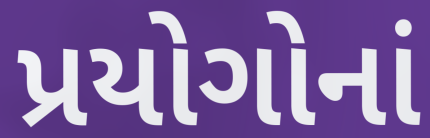
પ્રયોગોનાં